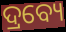
ଦ୍ରବ୍ୟେ